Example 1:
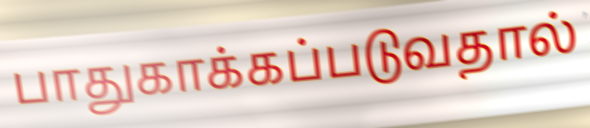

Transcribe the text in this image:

பாதுகாக்கப்படுவதால்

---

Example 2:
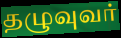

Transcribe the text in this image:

தழுவுவர்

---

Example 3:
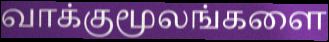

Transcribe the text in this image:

வாக்குமூலங்களை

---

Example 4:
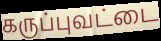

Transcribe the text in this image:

கருப்புவட்டை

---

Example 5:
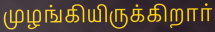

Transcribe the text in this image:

முழங்கியிருக்கிறார்